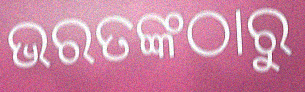
ଭରତଙ୍କଠାରୁ